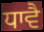
ਧਾਵੈ